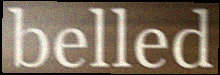
belled